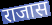
राजास